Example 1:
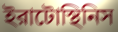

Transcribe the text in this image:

ইরাটোস্থিনিস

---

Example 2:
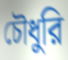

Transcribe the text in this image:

চৌধুরি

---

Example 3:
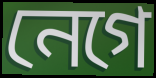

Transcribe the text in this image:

নেগে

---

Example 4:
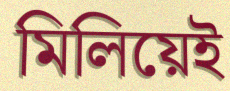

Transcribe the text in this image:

মিলিয়েই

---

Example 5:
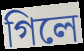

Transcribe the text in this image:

গিলে